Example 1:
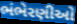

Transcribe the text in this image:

ભંભેરણીઓ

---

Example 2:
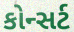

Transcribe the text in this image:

કોન્સર્ટ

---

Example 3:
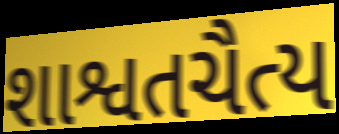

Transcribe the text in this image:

શાશ્વતચૈત્ય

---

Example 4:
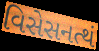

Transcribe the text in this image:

વિસેસનત્થં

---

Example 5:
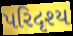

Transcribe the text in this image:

પરિદૃશ્ય